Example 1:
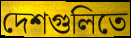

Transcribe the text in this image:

দেশগুলিতে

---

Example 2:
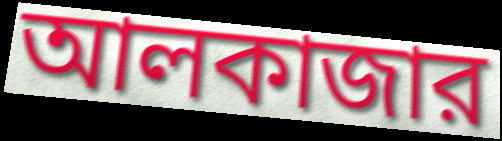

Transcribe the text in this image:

আলকাজার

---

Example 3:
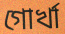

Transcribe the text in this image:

গোর্খা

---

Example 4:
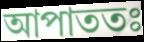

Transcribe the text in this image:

আপাততঃ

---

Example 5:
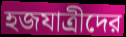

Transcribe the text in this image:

হজযাত্রীদের